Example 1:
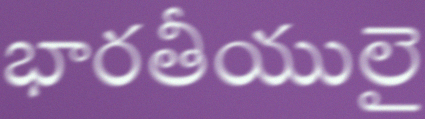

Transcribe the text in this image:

భారతీయులై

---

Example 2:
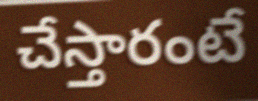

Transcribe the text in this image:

చేస్తారంటే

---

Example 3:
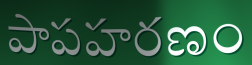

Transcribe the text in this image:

పాపహరణం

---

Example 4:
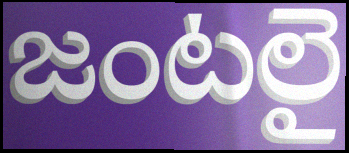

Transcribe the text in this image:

జంటలై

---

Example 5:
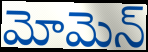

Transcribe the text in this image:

మోమెన్